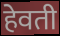
हेवती